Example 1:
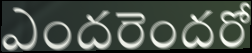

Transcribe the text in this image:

ఎందరెందరో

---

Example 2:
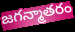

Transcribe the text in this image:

జగన్మాతరం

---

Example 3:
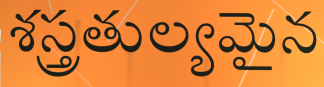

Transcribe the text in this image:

శస్త్రతుల్యమైన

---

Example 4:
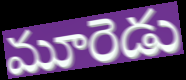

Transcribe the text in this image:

మూరెడు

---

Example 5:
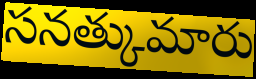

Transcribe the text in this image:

సనత్కుమారు